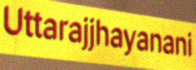
Uttarajjhayanani